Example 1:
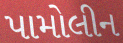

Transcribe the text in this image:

પામોલીન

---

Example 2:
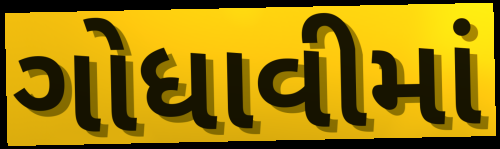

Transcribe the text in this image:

ગોધાવીમાં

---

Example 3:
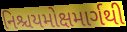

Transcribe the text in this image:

નિશ્ચયમોક્ષમાર્ગથી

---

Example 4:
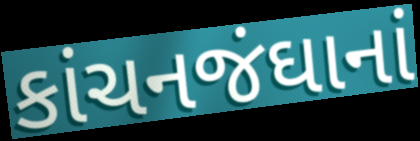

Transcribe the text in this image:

કાંચનજંઘાનાં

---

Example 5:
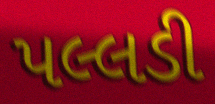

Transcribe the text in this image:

પલ્લડી